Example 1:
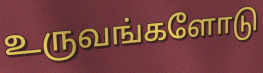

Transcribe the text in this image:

உருவங்களோடு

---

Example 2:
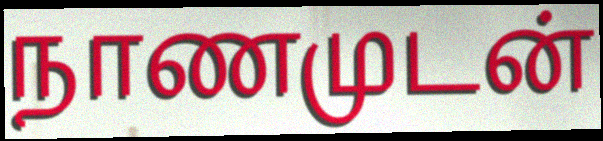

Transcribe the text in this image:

நாணமுடன்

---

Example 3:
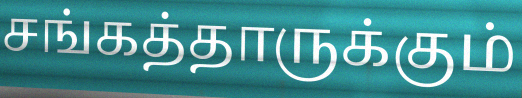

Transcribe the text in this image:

சங்கத்தாருக்கும்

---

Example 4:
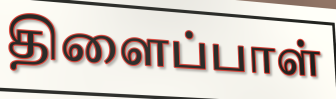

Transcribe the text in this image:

திளைப்பாள்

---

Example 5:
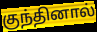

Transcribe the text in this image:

குந்தினால்